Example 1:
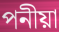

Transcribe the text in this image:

পনীয়া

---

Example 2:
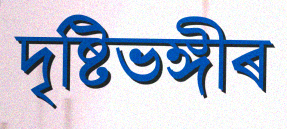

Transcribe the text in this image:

দৃষ্টিভঙ্গীৰ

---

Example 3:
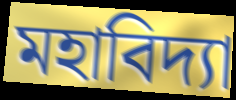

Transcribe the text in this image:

মহাবিদ্যা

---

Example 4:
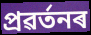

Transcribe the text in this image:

প্ৰৱৰ্তনৰ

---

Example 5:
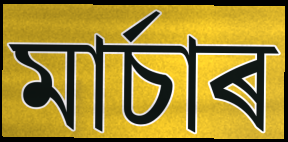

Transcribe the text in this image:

মাৰ্চাৰ